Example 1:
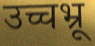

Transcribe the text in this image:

उच्चभ्रू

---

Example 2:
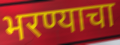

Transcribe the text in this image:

भरण्याचा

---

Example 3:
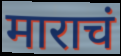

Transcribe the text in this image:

माराचं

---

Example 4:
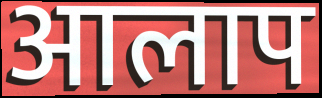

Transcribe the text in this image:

आलाप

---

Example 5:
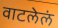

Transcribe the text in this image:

वाटलेलं